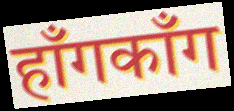
हाँगकाँग